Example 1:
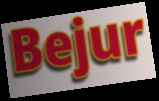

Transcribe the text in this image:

Bejur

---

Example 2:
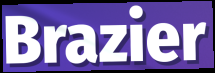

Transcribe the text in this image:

Brazier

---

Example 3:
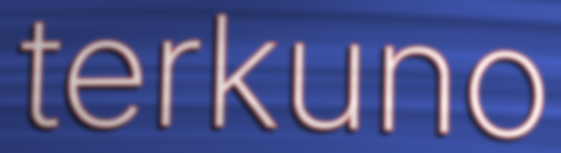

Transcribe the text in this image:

terkuno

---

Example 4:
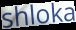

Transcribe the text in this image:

shloka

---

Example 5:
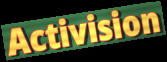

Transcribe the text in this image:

Activision